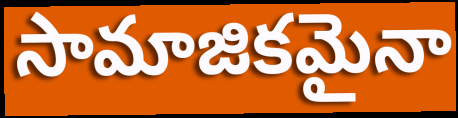
సామాజికమైనా